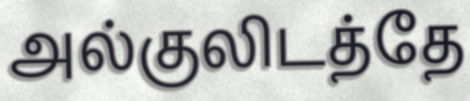
அல்குலிடத்தே